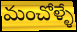
మంచోళ్ళే